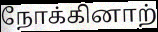
நோக்கினாற்